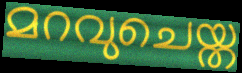
മറവുചെയ്ത